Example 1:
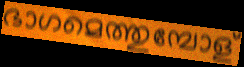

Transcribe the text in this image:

ഭാഗമെത്തുമ്പോള്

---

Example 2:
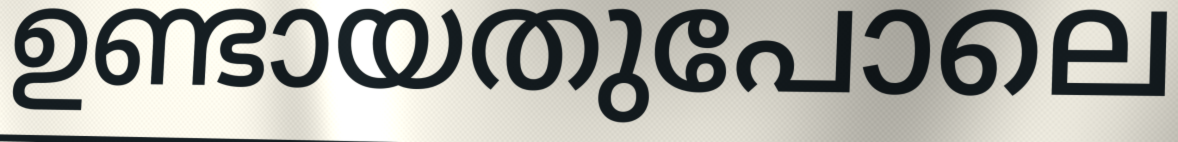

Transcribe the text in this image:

ഉണ്ടായതുപോലെ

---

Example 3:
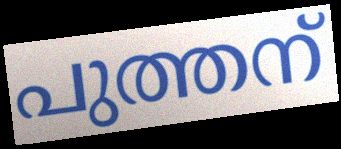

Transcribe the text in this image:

പുത്തന്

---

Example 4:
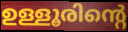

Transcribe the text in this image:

ഉള്ളൂരിന്റെ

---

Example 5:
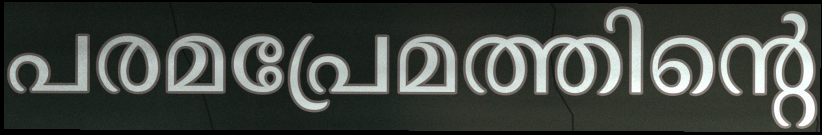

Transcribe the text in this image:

പരമപ്രേമത്തിന്റെ